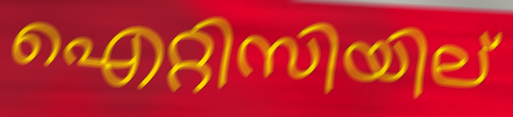
ഐറ്റിസിയില്